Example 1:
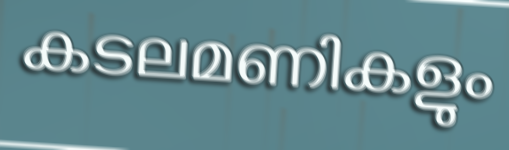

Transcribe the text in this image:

കടലമണികളും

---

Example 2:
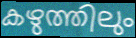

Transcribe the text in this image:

കഴുത്തിലും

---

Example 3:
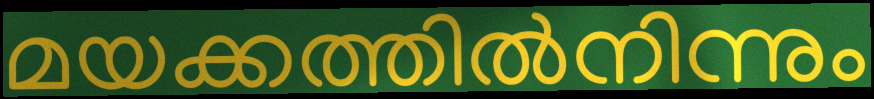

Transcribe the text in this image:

മയക്കത്തിൽനിന്നും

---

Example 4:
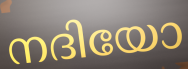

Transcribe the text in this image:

നദിയോ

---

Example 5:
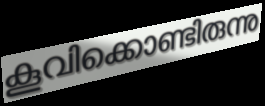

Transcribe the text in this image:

കൂവിക്കൊണ്ടിരുന്നു